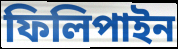
ফিলিপাইন